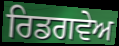
ਰਿਡਗਵੇਅ